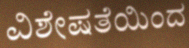
ವಿಶೇಷತೆಯಿಂದ